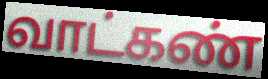
வாட்கண்